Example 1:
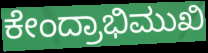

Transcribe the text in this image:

ಕೇಂದ್ರಾಭಿಮುಖಿ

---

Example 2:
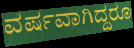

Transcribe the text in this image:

ವರ್ಷವಾಗಿದ್ದರೂ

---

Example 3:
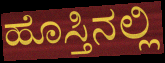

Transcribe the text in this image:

ಹೊಸ್ತಿನಲ್ಲಿ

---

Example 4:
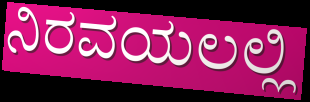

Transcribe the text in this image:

ನಿರವಯಲಲ್ಲಿ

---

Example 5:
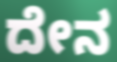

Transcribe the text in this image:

ದೇನ